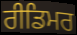
ਰੀਡਿਮਰ